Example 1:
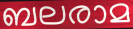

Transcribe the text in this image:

ബലരാമ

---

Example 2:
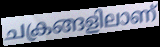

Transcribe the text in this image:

ചക്രങ്ങളിലാണ്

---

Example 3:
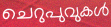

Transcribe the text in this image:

ചെറുപുവുകൾ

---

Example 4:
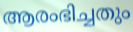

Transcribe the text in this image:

ആരംഭിച്ചതും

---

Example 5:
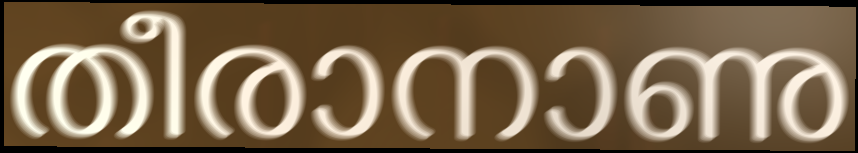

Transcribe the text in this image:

തീരാനാണു